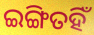
ଇଙ୍ଗିତହିଁ